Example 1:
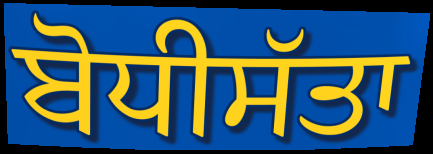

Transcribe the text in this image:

ਬੋਧੀਸੱਤਾ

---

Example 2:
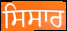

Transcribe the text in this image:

ਸਿਸਾਰ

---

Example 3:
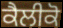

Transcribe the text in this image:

ਕੈਲੀਕੋ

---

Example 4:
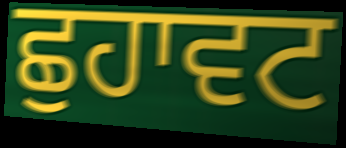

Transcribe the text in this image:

ਛੁਹਾਵਟ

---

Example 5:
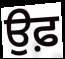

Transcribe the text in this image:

ਉਫ਼